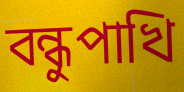
বন্ধুপাখি